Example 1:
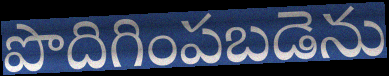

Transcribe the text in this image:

పొదిగింపబడెను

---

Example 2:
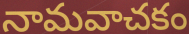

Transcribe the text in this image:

నామవాచకం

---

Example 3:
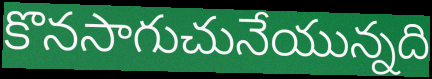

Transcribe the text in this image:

కొనసాగుచునేయున్నది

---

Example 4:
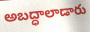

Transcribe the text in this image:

అబద్ధాలాడారు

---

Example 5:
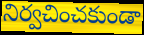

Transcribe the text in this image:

నిర్వచించకుండా